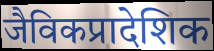
जैविकप्रादेशिक